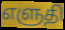
எளுதி